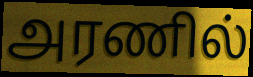
அரணில்